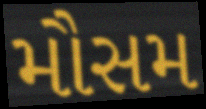
મૌસમ